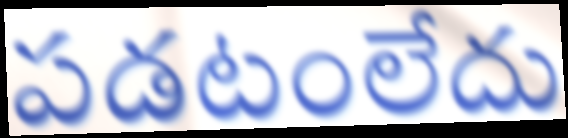
పడటంలేదు